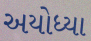
અયોધ્યા